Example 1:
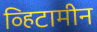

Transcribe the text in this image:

व्हिटामीन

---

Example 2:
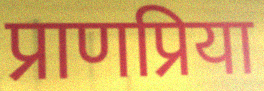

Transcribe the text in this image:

प्राणप्रिया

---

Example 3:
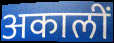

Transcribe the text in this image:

अकालीं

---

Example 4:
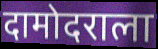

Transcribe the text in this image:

दामोदराला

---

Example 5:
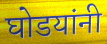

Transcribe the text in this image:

घोडयांनी